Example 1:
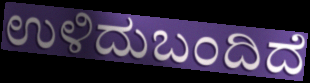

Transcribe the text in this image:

ಉಳಿದುಬಂದಿದೆ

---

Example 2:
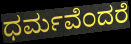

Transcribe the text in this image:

ಧರ್ಮವೆಂದರೆ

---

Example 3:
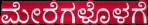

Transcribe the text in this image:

ಮೇರೆಗಳೊಳಗೆ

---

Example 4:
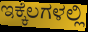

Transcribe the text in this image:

ಇಕ್ಕೆಲಗಳಲ್ಲಿ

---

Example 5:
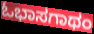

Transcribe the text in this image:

ಓಭಾಸಗಾಥಂ